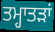
ਤਮ੍ਹਾਤੜਾਂ